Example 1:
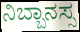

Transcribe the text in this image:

ನಿಬ್ಬಾನಸ್ಸ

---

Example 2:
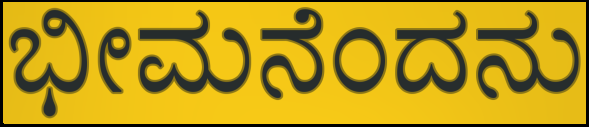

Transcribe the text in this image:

ಭೀಮನೆಂದನು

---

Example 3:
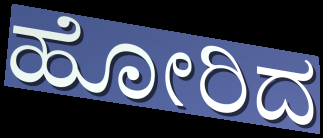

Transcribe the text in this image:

ಹೋರಿದ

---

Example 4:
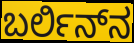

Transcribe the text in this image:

ಬರ್ಲಿನ್‍ನ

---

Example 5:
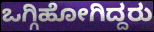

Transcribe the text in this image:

ಒಗ್ಗಿಹೋಗಿದ್ದರು